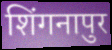
शिंगनापुर